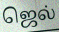
ஜெல்